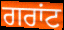
ਗਰਾਂਟ